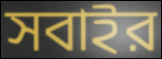
সবাইর